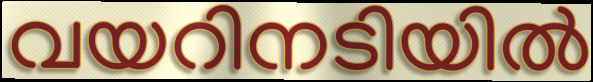
വയറിനടിയിൽ